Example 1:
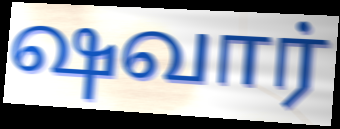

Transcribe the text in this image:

ஷவார்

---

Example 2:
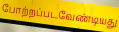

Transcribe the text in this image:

போற்றப்படவேண்டியது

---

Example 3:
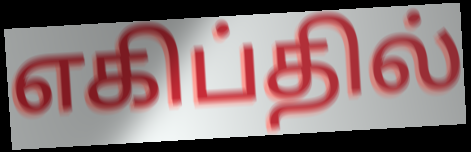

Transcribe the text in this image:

எகிப்தில்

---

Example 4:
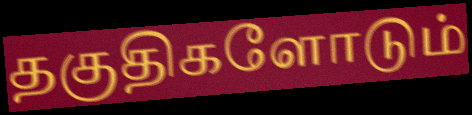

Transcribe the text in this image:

தகுதிகளோடும்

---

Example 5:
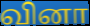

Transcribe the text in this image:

வினா